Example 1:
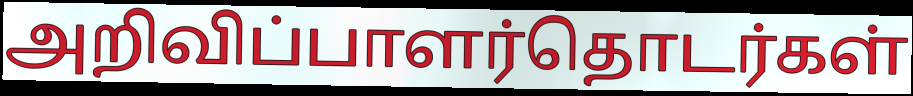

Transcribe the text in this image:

அறிவிப்பாளர்தொடர்கள்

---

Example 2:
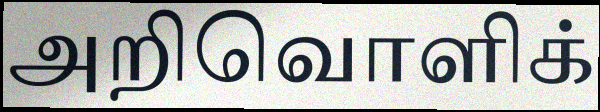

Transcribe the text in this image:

அறிவொளிக்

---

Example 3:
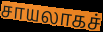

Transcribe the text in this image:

சாயலாகச்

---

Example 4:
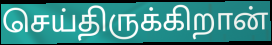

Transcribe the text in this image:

செய்திருக்கிறான்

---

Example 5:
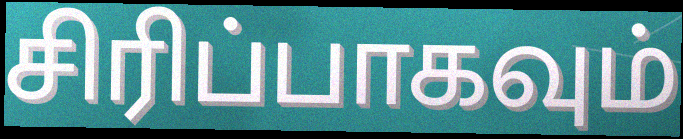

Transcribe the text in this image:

சிரிப்பாகவும்